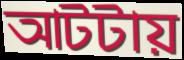
আটটায়